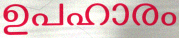
ഉപഹാരം